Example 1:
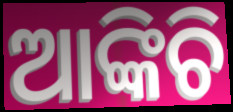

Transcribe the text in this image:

ଆଙ୍କିଚି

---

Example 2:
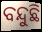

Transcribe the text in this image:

ବନ୍ଦୁଛି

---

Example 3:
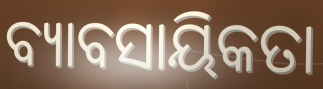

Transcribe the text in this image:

ବ୍ୟାବସାୟିକତା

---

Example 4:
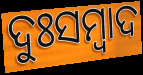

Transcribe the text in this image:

ଦୁଃସମ୍ୱାଦ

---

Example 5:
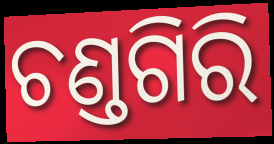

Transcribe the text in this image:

ଚଣ୍ଡଗିରି